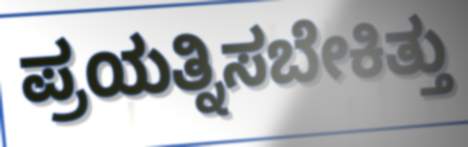
ಪ್ರಯತ್ನಿಸಬೇಕಿತ್ತು